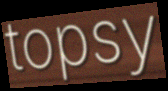
topsy